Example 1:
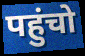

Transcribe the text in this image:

पहुंचो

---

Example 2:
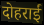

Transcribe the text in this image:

दोहराईं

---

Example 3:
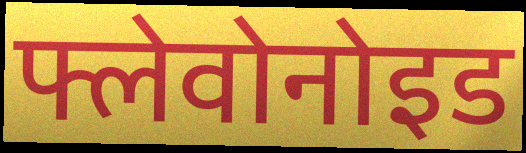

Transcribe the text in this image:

फ्लेवोनोइड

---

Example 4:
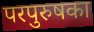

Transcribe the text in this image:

परपुरुषका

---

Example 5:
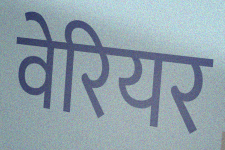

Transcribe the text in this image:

वेरियर